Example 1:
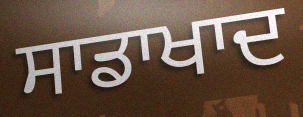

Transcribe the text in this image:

ਸਾਡਾਖਾਦ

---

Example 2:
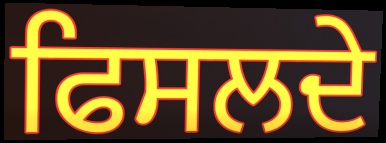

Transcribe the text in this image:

ਫਿਸਲਦੇ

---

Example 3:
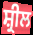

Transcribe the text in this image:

ਸ਼੍ਰੀਲ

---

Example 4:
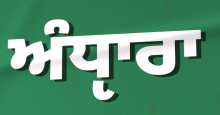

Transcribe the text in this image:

ਅੰਧੵਾਰਾ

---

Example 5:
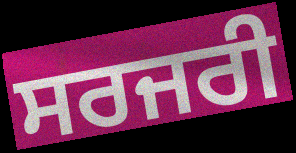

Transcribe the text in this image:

ਸਰਜਰੀ